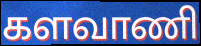
களவாணி